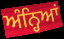
ਅੰਨ੍ਹਿਆਂ